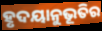
ହୃଦୟାନୁଭୂତିର